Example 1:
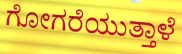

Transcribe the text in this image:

ಗೋಗರೆಯುತ್ತಾಳೆ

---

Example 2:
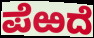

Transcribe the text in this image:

ಪೆಱದೆ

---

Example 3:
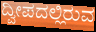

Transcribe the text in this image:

ದ್ವೀಪದಲ್ಲಿರುವ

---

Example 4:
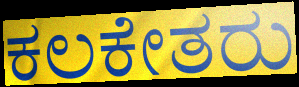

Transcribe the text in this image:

ಕಲಕೇತರು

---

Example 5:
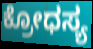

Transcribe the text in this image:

ಕ್ರೋಧಸ್ಯ